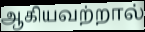
ஆகியவற்றால்